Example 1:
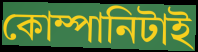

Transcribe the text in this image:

কোম্পানিটাই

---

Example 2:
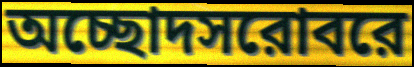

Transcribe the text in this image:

অচ্ছোদসরোবরে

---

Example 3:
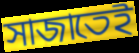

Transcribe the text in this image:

সাজাতেই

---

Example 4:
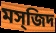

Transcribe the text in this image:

মস্জিদ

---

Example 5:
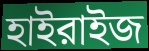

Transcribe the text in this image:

হাইরাইজ